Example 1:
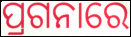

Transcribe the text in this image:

ପ୍ରଗନାରେ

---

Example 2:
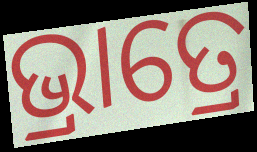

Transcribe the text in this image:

ଭ୍ରାତ୍ରେ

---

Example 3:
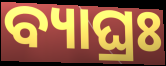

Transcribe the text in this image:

ବ୍ୟାଘ୍ରଃ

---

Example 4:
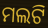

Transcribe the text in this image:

ମଲଟି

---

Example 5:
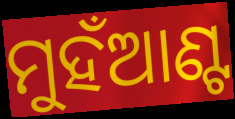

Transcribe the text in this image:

ମୁହଁଆଣ୍ଟ